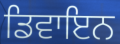
ਡਿਵਾਇਨ